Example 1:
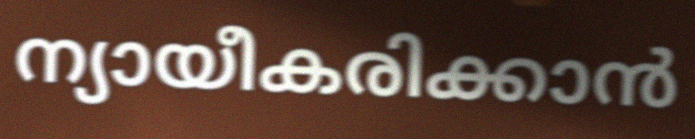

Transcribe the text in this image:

ന്യായീകരിക്കാൻ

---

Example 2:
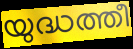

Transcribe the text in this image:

യുദ്ധത്തീ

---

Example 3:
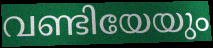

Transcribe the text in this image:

വണ്ടിയേയും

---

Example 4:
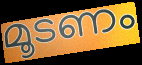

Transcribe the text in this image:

മൂടണം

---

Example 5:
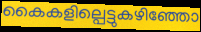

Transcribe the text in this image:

കൈകളില്പെട്ടുകഴിഞ്ഞോ